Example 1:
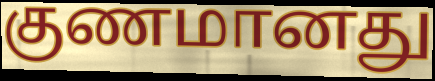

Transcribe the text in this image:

குணமானது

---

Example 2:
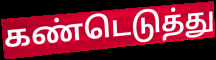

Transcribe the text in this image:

கண்டெடுத்து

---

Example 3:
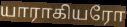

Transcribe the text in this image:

யாராகியரோ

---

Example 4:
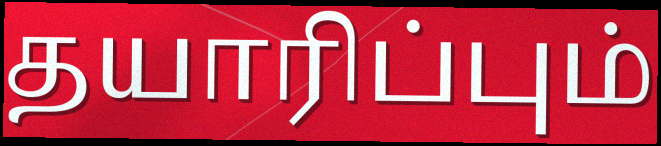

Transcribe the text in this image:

தயாரிப்பும்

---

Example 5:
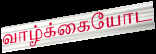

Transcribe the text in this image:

வாழ்க்கையோட